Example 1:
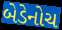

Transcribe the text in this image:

બેડેનોચ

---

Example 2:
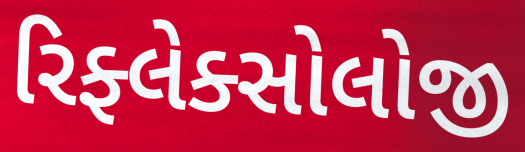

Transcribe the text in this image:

રિફ્લેક્સોલોજી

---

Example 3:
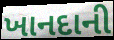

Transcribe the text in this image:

ખાનદાની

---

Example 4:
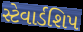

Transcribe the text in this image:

સ્ટેવાર્ડશિપ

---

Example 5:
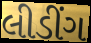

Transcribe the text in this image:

લીડીંગ